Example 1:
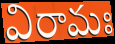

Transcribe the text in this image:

విరామః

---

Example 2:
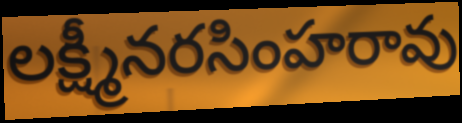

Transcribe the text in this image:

లక్ష్మీనరసింహరావు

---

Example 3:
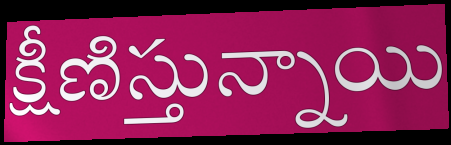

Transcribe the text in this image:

క్షీణిస్తున్నాయి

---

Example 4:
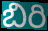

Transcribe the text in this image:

బిరి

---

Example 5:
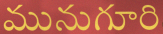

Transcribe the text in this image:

మునుగూరి